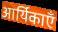
आर्यिकाएँ